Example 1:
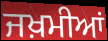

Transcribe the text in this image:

ਜਖ਼ਮੀਆਂ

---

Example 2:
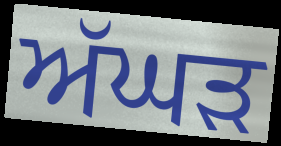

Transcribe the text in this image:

ਅੱਘੜ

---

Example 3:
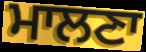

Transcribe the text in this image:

ਮਾਲਣਾ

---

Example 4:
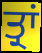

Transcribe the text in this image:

ਤ੍ਰਾਂ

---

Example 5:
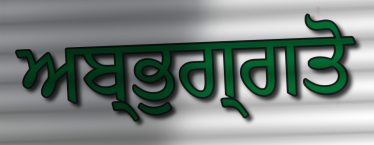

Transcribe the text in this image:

ਅਬ੍ਭੁਗ੍ਗਤੋ